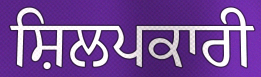
ਸ਼ਿਲਪਕਾਰੀ